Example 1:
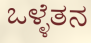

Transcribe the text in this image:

ಒಳ್ಳೆತನ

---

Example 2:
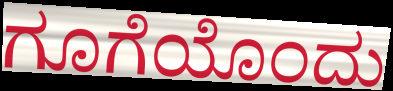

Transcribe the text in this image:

ಗೂಗೆಯೊಂದು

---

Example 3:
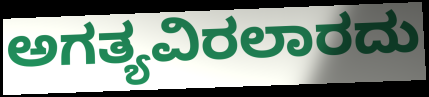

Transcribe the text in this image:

ಅಗತ್ಯವಿರಲಾರದು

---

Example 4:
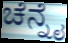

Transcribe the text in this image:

ಚೆನ್ನೈ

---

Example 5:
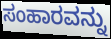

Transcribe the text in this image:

ಸಂಹಾರವನ್ನು